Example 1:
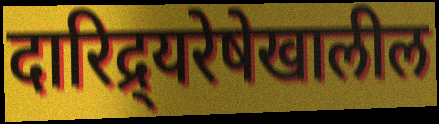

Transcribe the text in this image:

दारिद्र्यरेषेखालील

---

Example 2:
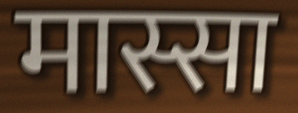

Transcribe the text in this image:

मास्सा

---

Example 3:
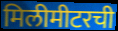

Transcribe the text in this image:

मिलीमीटरची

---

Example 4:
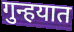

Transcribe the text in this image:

गुन्हयात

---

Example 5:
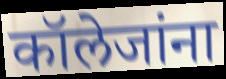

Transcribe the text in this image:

कॉलेजांना